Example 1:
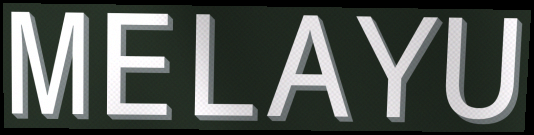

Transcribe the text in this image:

MELAYU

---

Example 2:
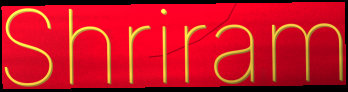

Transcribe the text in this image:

Shriram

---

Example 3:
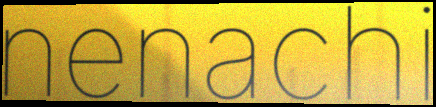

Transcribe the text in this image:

nenachi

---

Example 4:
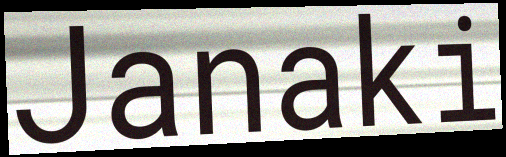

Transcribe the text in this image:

Janaki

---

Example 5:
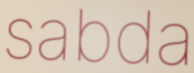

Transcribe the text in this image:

sabda